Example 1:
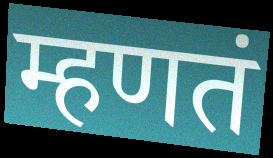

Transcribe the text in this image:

म्हणतं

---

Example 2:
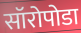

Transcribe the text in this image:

सॉरोपोडा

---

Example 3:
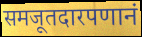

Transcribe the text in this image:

समजूतदारपणानं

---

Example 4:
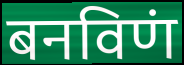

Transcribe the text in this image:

बनविणं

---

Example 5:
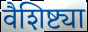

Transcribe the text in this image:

वैशिष्ट्या